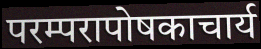
परम्परापोषकाचार्य